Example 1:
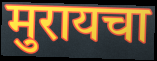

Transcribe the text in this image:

मुरायचा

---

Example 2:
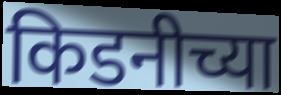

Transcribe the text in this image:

किडनीच्या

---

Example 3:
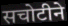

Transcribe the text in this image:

सचोटीने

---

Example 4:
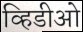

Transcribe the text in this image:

व्हिडीओ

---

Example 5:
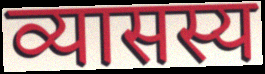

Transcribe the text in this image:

व्यासस्य